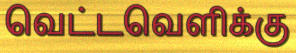
வெட்டவெளிக்கு